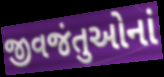
જીવજંતુઓનાં